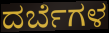
ದರ್ಬೆಗಳ